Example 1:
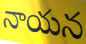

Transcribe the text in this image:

నాయన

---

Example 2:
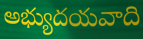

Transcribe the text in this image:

అభ్యుదయవాది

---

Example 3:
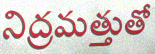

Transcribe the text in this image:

నిద్రమత్తుతో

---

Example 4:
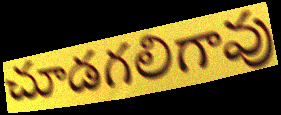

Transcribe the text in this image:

చూడగలిగావు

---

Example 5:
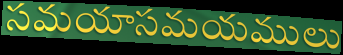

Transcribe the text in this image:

సమయాసమయములు